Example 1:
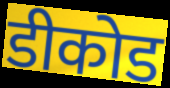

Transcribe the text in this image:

डीकोड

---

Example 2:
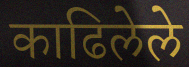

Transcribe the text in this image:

काढिलेले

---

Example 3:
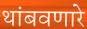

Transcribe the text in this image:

थांबवणारे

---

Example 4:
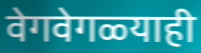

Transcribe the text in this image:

वेगवेगळ्याही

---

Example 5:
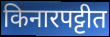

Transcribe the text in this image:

किनारपट्टीत